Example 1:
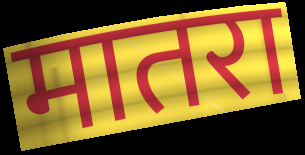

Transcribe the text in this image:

मातरा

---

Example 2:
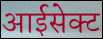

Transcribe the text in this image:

आईसेक्ट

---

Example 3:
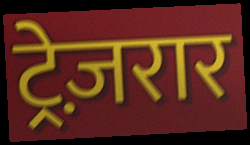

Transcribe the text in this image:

ट्रेज़रार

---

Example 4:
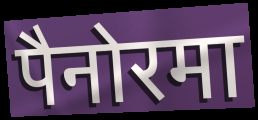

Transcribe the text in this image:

पैनोरमा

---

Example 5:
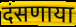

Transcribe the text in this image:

दंसणाया